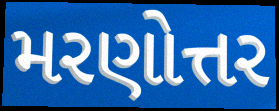
મરણોત્તર